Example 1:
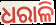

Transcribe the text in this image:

ଧରାଳି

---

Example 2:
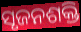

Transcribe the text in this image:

ସୃଜନଶକ୍ତି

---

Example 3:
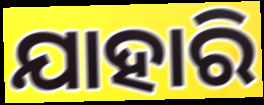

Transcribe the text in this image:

ଯାହାରି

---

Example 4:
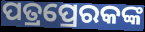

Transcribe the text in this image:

ପତ୍ରପ୍ରେରକଙ୍କ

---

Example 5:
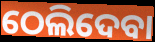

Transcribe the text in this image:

ଠେଲିଦେବା